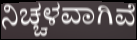
ನಿಚ್ಚಳವಾಗಿವೆ